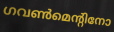
ഗവൺമെന്റിനോ